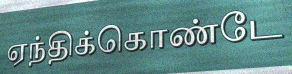
ஏந்திக்கொண்டே